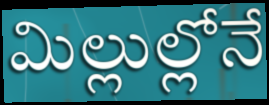
మిల్లుల్లోనే